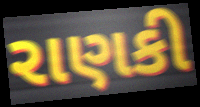
રાણકી